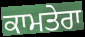
ਕਾਮਤੇਰਾ